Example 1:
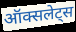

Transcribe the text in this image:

ऑक्सलेट्स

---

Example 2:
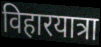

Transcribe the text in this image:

विहारयात्रा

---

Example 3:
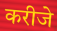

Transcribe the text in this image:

करीजे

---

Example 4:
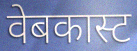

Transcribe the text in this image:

वेबकास्ट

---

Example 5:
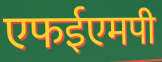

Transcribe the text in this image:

एफईएमपी